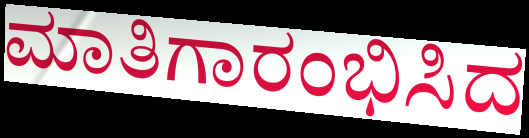
ಮಾತಿಗಾರಂಭಿಸಿದ